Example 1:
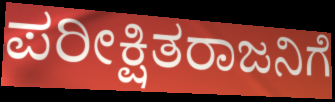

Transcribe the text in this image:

ಪರೀಕ್ಷಿತರಾಜನಿಗೆ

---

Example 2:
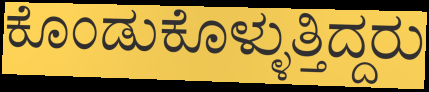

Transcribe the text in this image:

ಕೊಂಡುಕೊಳ್ಳುತ್ತಿದ್ದರು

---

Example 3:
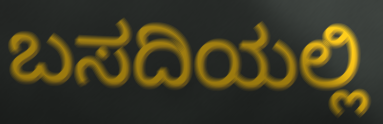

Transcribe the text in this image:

ಬಸದಿಯಲ್ಲಿ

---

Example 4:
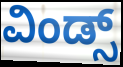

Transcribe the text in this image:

ವಿಂಡ್ಸ್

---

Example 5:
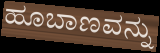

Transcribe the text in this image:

ಹೂಬಾಣವನ್ನು